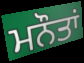
ਮਨੌਤਾਂ